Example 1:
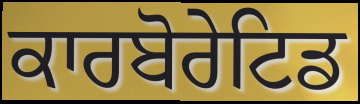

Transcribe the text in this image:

ਕਾਰਬੋਰੇਟਿਡ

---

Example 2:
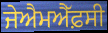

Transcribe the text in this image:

ਜੇਐਮਐੱਫ਼ਸੀ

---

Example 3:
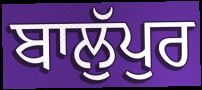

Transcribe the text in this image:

ਬਾਲੁੱਪੁਰ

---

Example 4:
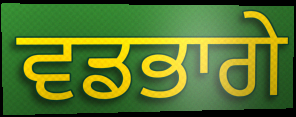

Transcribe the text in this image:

ਵਡਭਾਗੇ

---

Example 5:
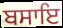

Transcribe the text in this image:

ਬਸਾਇ